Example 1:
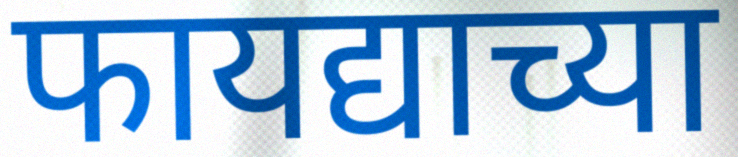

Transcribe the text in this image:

फायद्याच्या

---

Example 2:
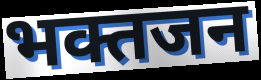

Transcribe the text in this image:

भक्तजन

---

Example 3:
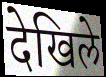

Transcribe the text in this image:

देखिले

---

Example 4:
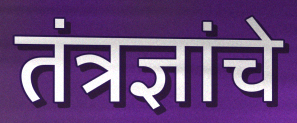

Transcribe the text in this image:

तंत्रज्ञांचे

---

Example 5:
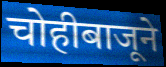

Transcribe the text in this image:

चोहीबाजूने